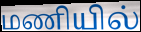
மணியில்